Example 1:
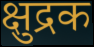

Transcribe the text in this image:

क्षुद्रक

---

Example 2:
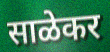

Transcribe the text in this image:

साळेकर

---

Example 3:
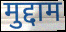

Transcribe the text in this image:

मुद्दाम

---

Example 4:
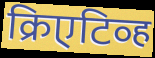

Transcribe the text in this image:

क्रिएटिव्ह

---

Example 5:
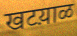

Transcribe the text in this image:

खटय़ाळ